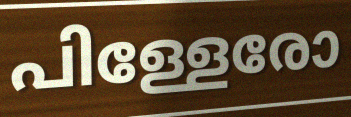
പിള്ളേരോ